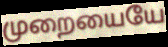
முறையையே